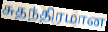
சுதந்திரமான